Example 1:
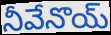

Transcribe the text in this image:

నీవేనొయ్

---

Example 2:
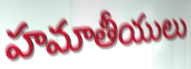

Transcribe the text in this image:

హమాతీయులు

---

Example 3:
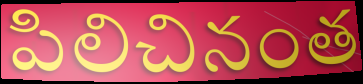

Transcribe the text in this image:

పిలిచినంత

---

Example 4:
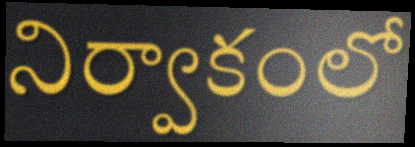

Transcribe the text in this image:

నిర్వాకంలో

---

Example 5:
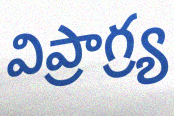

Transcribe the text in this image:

విప్రాగ్ర్య